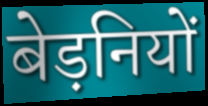
बेड़नियों